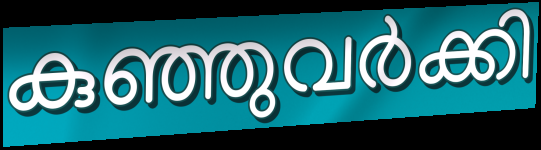
കുഞ്ഞുവർക്കി